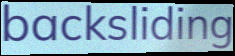
backsliding